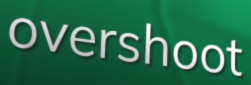
overshoot